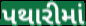
પથારીમાં